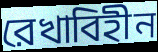
রেখাবিহীন